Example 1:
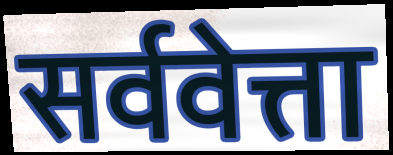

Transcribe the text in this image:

सर्ववेत्ता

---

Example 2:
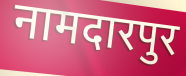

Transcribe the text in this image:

नामदारपुर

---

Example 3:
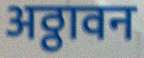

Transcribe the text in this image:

अठ्ठावन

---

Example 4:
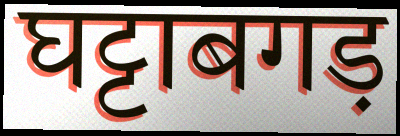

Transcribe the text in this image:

घट्टाबगड़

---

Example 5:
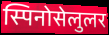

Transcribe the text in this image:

स्पिनोसेलुलर